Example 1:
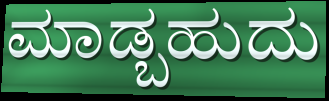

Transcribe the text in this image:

ಮಾಡ್ಬಹುದು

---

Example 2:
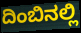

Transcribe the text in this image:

ದಿಂಬಿನಲ್ಲಿ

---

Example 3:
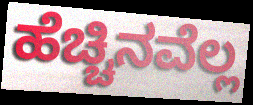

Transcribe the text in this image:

ಹೆಚ್ಚಿನವೆಲ್ಲ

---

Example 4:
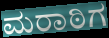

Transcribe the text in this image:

ಮರಾಠಿಗ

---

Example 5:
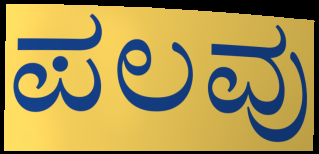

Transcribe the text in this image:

ಪಲವು